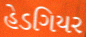
હેડગિયર